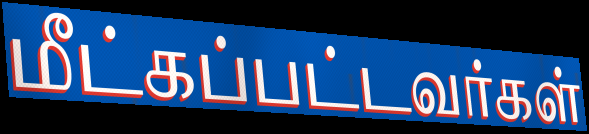
மீட்கப்பட்டவர்கள்